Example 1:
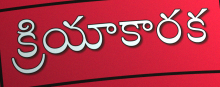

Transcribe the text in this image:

క్రియాకారక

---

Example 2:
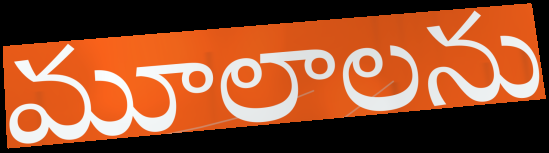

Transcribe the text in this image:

మూలాలను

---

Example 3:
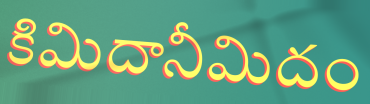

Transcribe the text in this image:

కిమిదానీమిదం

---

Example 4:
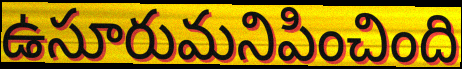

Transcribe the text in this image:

ఉసూరుమనిపించింది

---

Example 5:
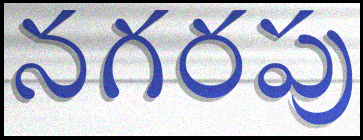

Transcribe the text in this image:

నగరపు